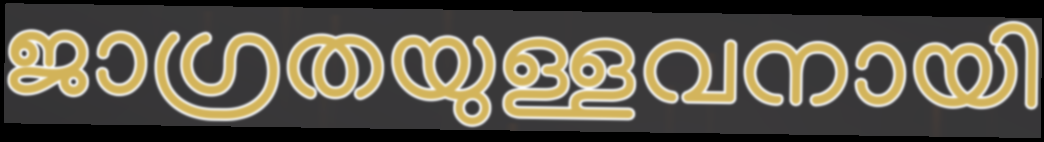
ജാഗ്രതയുള്ളവനായി